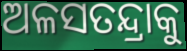
ଅଳସତନ୍ଦ୍ରାକୁ